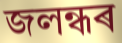
জলন্ধৰ